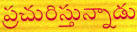
ప్రచురిస్తున్నాడు